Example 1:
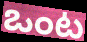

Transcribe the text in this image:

ఒంట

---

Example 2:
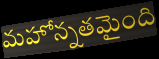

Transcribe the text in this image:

మహోన్నతమైంది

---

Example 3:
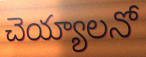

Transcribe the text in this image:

చెయ్యాలనో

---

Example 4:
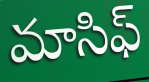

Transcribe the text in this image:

మాసిఫ్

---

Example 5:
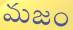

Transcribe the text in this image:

మజం